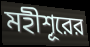
মহীশূরের